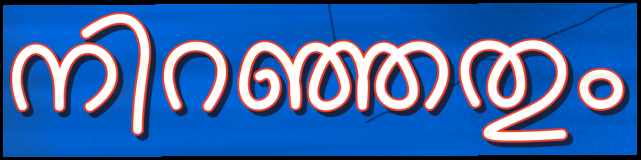
നിറഞ്ഞതും